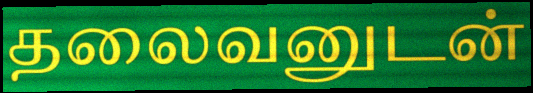
தலைவனுடன்